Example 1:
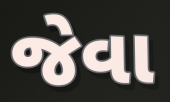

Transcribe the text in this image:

જેવા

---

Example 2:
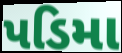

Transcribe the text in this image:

પડિમા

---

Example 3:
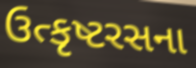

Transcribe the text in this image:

ઉત્કૃષ્ટરસના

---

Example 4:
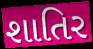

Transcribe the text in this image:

શાતિર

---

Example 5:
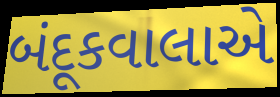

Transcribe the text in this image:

બંદૂકવાલાએ